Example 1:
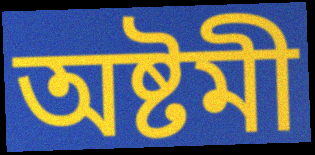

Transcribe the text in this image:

অষ্টমী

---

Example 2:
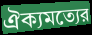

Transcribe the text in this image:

ঐক্যমত্যের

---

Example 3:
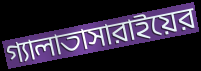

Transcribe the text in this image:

গ্যালাতাসারাইয়ের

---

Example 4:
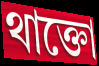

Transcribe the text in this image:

থাক্তো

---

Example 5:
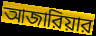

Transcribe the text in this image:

আজারিয়ার